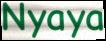
Nyaya